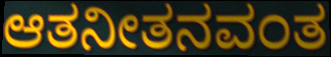
ಆತನೀತನವಂತ